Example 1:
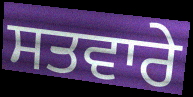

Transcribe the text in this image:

ਸਤਵਾਰੇ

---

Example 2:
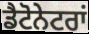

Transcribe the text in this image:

ਡੈਟੋਨੇਟਰਾਂ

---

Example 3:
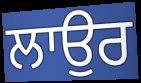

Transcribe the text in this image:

ਲਾਉਰ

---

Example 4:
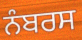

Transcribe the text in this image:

ਨੰਬਰਸ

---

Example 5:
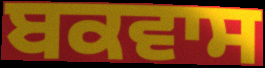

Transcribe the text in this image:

ਬਕਵਾਸ